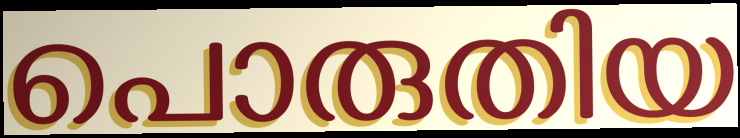
പൊരുതിയ